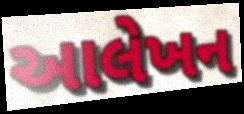
આલેખન